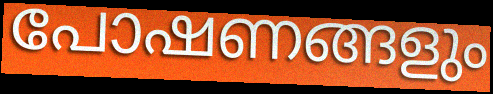
പോഷണങ്ങളും